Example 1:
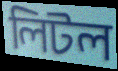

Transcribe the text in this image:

লিটল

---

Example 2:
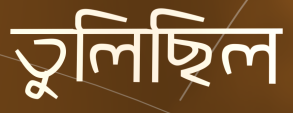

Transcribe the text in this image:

তুলিছিল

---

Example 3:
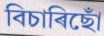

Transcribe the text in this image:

বিচাৰিছোঁ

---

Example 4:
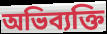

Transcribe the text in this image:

অভিব্যক্তি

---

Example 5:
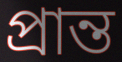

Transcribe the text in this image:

প্ৰান্ত